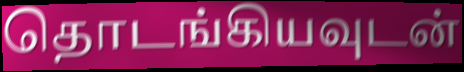
தொடங்கியவுடன்